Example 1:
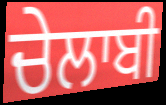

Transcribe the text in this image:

ਚੇਲਾਬੀ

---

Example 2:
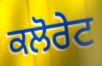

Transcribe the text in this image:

ਕਲੋਰੇਟ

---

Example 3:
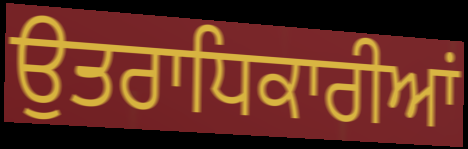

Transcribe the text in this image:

ਉਤਰਾਧਿਕਾਰੀਆਂ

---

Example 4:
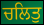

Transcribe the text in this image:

ਚਲਿਤੁ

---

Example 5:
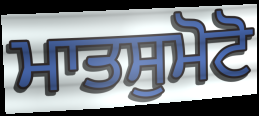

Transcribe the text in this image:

ਮਾਤਸੁਮੋਟੋ